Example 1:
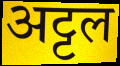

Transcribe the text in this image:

अट्टल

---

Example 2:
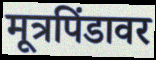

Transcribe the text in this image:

मूत्रपिंडावर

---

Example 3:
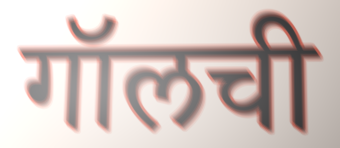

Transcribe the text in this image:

गॉलची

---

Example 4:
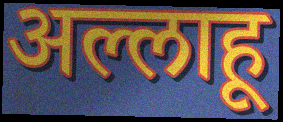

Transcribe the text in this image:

अल्लाहू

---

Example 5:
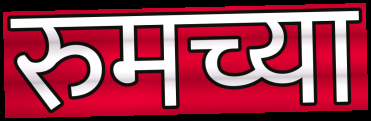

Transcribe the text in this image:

रुमच्या